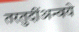
तरतुदींअन्वये